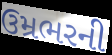
ઉમ્રભરની